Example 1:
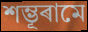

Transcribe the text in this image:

শম্ভূৰামে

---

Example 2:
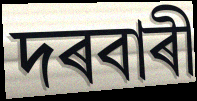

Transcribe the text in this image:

দৰবাৰী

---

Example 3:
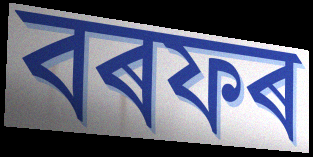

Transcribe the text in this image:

বৰফৰ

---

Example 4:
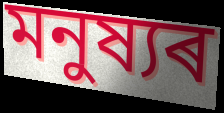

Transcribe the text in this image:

মনুষ্যৰ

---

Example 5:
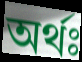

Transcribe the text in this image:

অৰ্থঃ